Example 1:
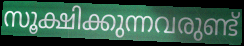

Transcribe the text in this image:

സൂക്ഷിക്കുന്നവരുണ്ട്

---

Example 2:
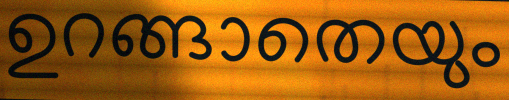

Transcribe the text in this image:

ഉറങ്ങാതെയും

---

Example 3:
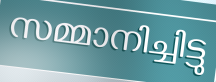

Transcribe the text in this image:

സമ്മാനിച്ചിട്ടു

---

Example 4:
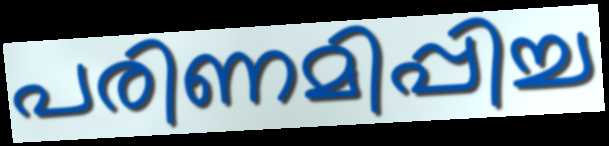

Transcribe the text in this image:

പരിണമിപ്പിച്ച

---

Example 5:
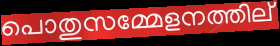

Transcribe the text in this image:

പൊതുസമ്മേളനത്തില്